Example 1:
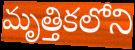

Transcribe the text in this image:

మృత్తికలోని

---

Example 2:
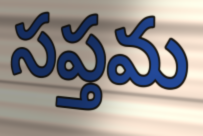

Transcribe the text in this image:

సప్తమ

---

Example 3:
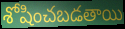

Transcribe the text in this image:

శోషించబడతాయి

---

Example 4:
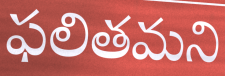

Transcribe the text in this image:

ఫలితమని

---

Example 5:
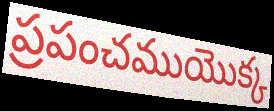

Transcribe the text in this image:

ప్రపంచముయొక్క